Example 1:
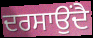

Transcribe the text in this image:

ਦਰਸਾਉਂਦੈ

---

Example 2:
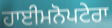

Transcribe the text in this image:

ਹਾਈਮਨੋਪਟੇਰਾ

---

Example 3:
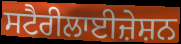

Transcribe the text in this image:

ਸਟੈਰੀਲਾਈਜ਼ੇਸ਼ਨ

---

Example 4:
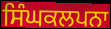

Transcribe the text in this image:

ਸਿੰਘਕਲਪਨਾ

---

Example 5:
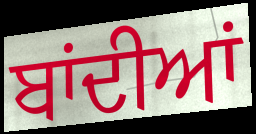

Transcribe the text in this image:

ਬਾਂਦੀਆਂ